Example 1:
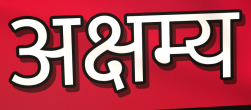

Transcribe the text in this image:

अक्षम्‍य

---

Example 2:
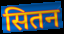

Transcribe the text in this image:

सितन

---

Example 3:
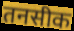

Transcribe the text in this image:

तनसीक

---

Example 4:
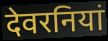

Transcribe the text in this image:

देवरनियां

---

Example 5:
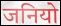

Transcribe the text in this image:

जनियो